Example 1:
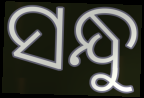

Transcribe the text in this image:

ସନ୍ଧୁ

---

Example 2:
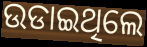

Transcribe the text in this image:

ଉଡାଇଥିଲେ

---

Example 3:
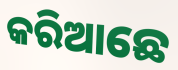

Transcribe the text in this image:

କରିଆଛେ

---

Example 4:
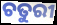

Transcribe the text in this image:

ଚତୁରୀ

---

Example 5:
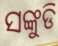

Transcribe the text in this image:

ସଙ୍କୁଡି